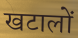
खटालों